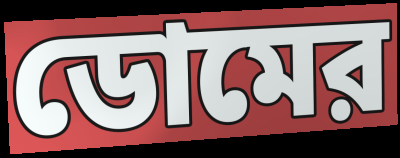
ডোমের